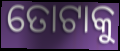
ତୋଟାକୁ